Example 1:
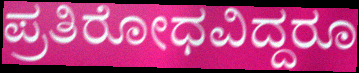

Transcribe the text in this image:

ಪ್ರತಿರೋಧವಿದ್ದರೂ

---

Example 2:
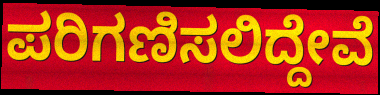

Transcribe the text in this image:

ಪರಿಗಣಿಸಲಿದ್ದೇವೆ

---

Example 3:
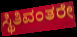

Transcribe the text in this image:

ಸ್ಥಿತಿವಂತರೇ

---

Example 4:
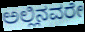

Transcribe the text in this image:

ಅಲ್ಲಿನವರೇ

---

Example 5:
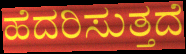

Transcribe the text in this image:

ಹೆದರಿಸುತ್ತದೆ